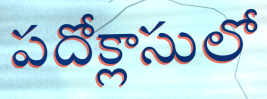
పదోక్లాసులో